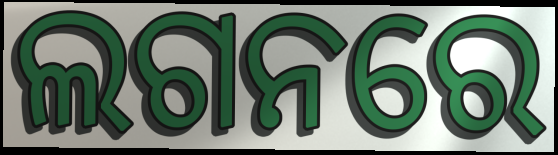
ଲଗନରେ